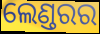
ଲେଣ୍ଡରର